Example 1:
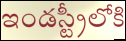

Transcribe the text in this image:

ఇండస్ట్రీలోకి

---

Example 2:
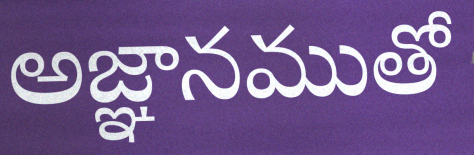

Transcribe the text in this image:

అజ్ఞానముతో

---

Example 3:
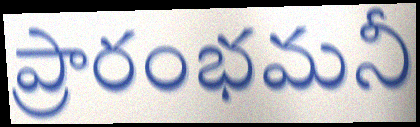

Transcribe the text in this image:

ప్రారంభమనీ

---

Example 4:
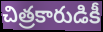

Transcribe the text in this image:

చిత్రకారుడికీ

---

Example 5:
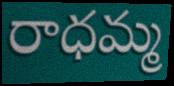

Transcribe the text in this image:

రాధమ్మ